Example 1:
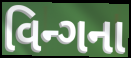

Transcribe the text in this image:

વિન્ગના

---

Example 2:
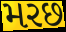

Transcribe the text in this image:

મરછ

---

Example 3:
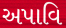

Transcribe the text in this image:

અપાવિ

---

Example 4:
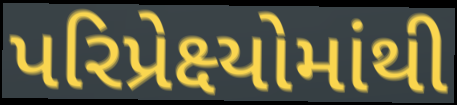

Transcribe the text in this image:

પરિપ્રેક્ષ્યોમાંથી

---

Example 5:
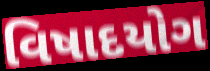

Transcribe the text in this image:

વિષાદયોગ